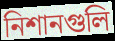
নিশানগুলি